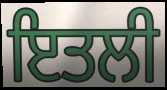
ਇਤਲੀ